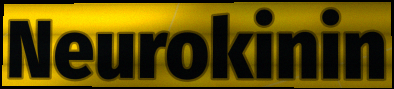
Neurokinin